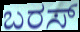
ಬರಸ್